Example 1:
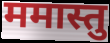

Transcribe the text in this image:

ममास्तु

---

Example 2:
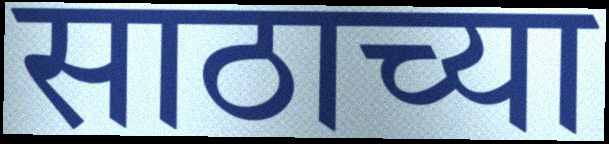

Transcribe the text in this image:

साठाच्या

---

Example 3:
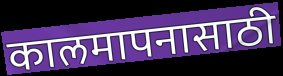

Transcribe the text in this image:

कालमापनासाठी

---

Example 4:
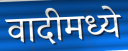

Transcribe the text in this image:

वादीमध्ये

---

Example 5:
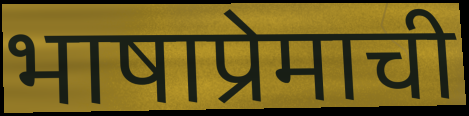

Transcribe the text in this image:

भाषाप्रेमाची